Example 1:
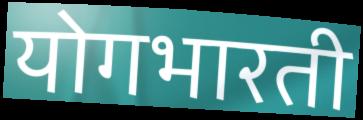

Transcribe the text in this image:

योगभारती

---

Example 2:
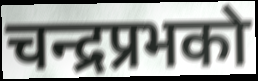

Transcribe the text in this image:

चन्द्रप्रभको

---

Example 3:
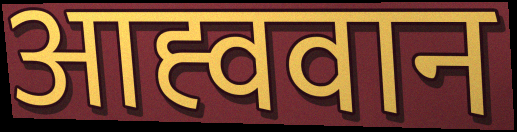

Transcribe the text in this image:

आह्ववान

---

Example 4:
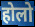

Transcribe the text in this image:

होलो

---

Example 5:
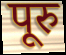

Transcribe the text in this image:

पूरु